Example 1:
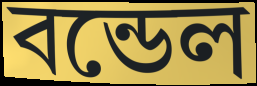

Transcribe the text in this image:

বন্ডেল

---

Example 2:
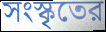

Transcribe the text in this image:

সংস্কৃতের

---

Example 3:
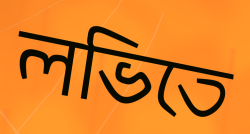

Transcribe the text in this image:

লভিতে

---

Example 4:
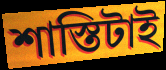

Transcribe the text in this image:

শাস্তিটাই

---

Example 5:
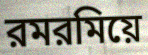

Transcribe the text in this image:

রমরমিয়ে